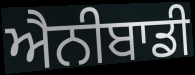
ਐਨੀਬਾਡੀ